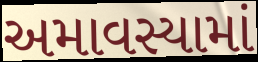
અમાવસ્યામાં